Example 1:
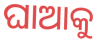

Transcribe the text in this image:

ଘାଆକୁ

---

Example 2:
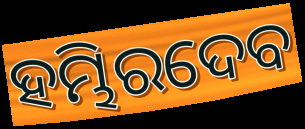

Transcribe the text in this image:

ହମ୍ଭିରଦେବ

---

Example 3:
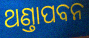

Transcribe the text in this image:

ଥଣ୍ତାପବନ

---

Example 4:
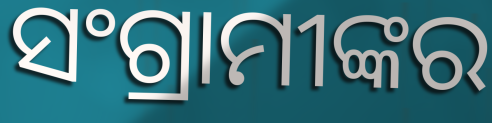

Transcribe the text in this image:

ସଂଗ୍ରାମୀଙ୍କର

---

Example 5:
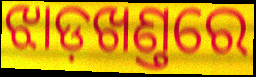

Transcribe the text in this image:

ଝାଡ଼ଖଣ୍ତରେ